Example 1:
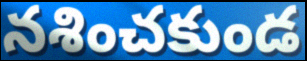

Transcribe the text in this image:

నశించకుండ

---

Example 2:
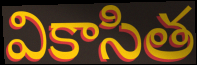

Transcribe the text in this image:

వికాసిత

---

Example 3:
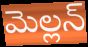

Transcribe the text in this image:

మెల్లన్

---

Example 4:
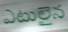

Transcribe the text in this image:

ఎటులైన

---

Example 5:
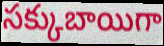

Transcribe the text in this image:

సక్కుబాయిగా